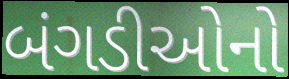
બંગડીઓનો